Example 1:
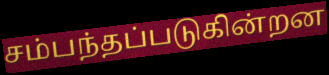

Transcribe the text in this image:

சம்பந்தப்படுகின்றன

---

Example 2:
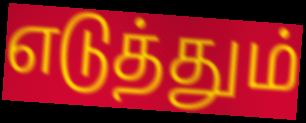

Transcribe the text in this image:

எடுத்தும்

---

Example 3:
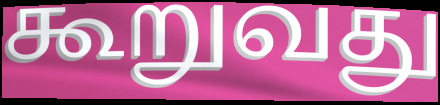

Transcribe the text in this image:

கூறுவது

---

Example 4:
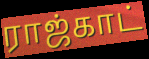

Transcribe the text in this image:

ராஜ்காட்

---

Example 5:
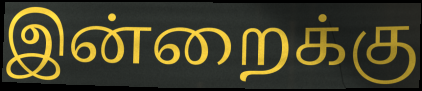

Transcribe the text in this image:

இன்றைக்கு